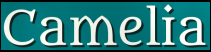
Camelia